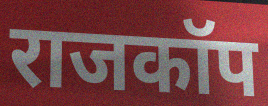
राजकॉप